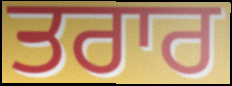
ਤਰਾਰ